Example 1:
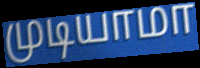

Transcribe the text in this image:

முடியாமா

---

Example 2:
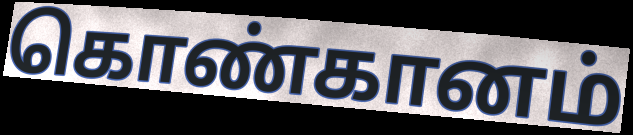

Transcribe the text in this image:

கொண்கானம்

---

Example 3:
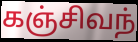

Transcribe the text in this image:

கஞ்சிவந்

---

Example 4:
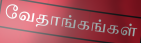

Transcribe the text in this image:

வேதாங்கங்கள்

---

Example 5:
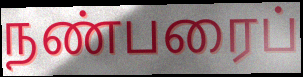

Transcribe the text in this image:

நண்பரைப்